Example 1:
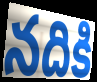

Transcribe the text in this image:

నదికి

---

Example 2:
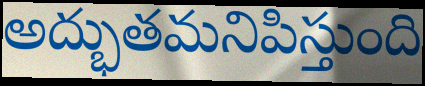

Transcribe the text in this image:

అద్భుతమనిపిస్తుంది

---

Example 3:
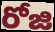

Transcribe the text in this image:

రోజి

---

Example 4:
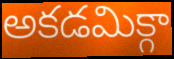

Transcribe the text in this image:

అకడమిక్గా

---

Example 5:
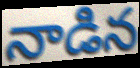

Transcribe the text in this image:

నాడిన